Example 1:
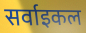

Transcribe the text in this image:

सर्वाइकल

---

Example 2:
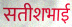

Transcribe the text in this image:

सतीशभाई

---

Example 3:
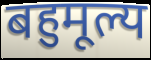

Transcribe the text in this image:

बहुमूल्य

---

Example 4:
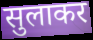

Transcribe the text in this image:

सुलाकर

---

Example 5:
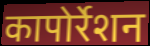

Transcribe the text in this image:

कापोर्रेशन